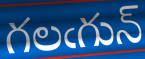
గలఁగున్